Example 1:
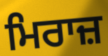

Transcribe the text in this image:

ਮਿਰਾਜ਼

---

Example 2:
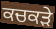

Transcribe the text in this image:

ਕਚਕੜੇ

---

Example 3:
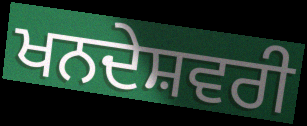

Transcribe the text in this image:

ਖਨਦੇਸ਼ਵਰੀ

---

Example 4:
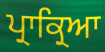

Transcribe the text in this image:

ਪ੍ਰਾਕ੍ਰਿਆ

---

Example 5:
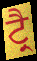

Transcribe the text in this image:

ਟ੍ਰੈ